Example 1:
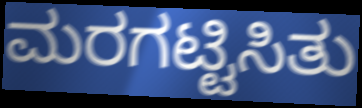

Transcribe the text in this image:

ಮರಗಟ್ಟಿಸಿತು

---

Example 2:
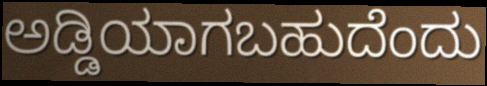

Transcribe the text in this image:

ಅಡ್ಡಿಯಾಗಬಹುದೆಂದು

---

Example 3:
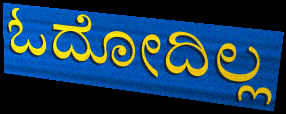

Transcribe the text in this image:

ಓದೋದಿಲ್ಲ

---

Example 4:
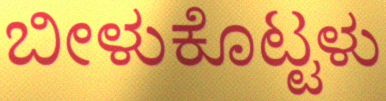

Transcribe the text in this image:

ಬೀಳುಕೊಟ್ಟಳು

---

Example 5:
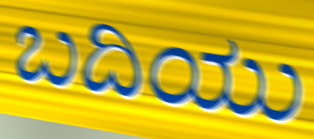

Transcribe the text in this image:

ಬದಿಯು